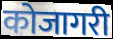
कोजागरी